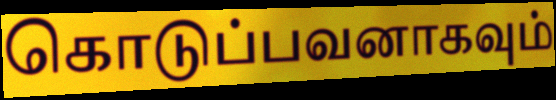
கொடுப்பவனாகவும்